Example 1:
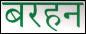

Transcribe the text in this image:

बरहन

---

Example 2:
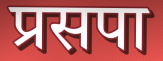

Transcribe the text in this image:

प्रसपा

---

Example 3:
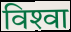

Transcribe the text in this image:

विश्‍वा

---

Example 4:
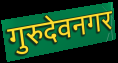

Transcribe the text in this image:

गुरुदेवनगर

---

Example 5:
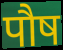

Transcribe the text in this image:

पौष